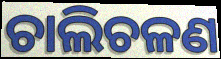
ଚାଲିଚଳଣ